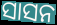
ସାସନ